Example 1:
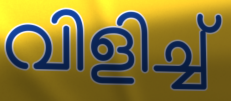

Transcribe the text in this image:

വിളിച്ച്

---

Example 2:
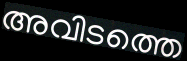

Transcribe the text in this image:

അവിടത്തെ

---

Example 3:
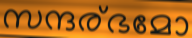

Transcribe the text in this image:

സന്ദര്ഭമോ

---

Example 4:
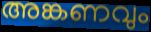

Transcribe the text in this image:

അങ്കണവും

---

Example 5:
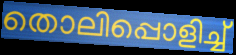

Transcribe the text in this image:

തൊലിപ്പൊളിച്ച്